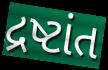
દ્રષ્ટાંત